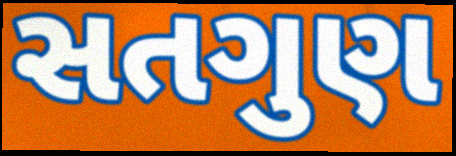
સતગુણ